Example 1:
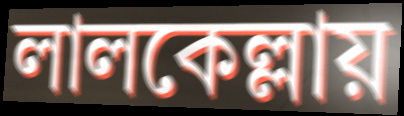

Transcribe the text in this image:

লালকেল্লায়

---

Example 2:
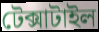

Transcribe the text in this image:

টেক্সাটাইল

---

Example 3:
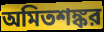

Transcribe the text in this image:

অমিতশঙ্কর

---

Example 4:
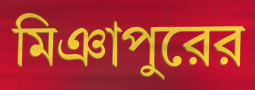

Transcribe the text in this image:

মিঞাপুরের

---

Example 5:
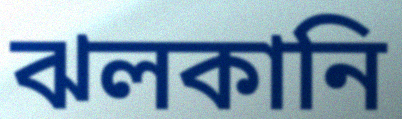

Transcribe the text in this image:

ঝলকানি